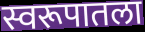
स्वरूपातला